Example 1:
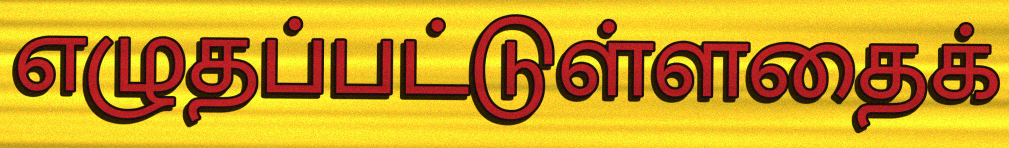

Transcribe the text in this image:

எழுதப்பட்டுள்ளதைக்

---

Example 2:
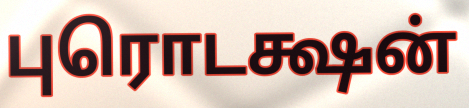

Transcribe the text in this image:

புரொடக்ஷன்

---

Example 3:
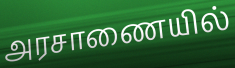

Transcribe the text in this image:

அரசாணையில்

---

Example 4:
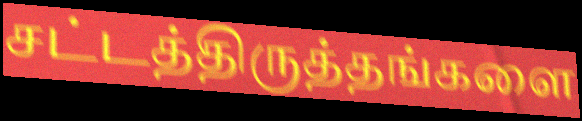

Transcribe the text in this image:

சட்டத்திருத்தங்களை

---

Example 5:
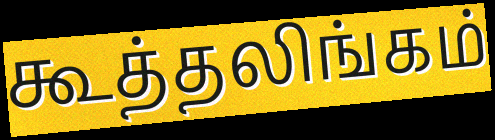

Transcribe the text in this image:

கூத்தலிங்கம்